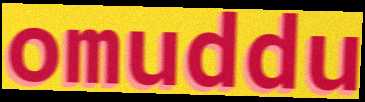
omuddu